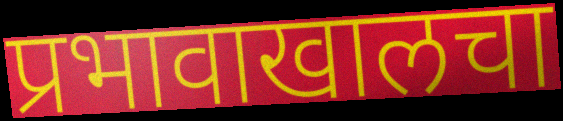
प्रभावाखालचा